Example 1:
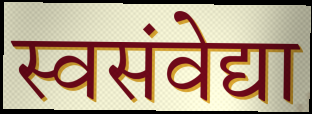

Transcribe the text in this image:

स्वसंवेद्या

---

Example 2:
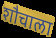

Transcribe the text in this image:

शौचाला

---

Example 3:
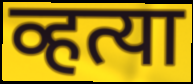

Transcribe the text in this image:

व्हत्या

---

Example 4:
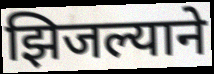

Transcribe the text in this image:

झिजल्याने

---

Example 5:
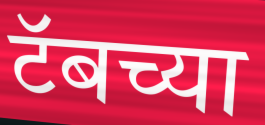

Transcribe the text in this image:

टॅबच्या